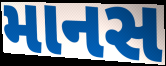
માનસ